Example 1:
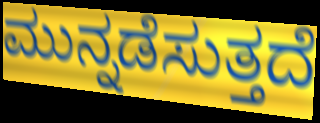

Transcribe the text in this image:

ಮುನ್ನಡೆಸುತ್ತದೆ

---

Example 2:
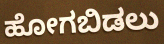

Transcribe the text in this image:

ಹೋಗಬಿಡಲು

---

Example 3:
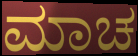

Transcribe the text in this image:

ಮಾಚ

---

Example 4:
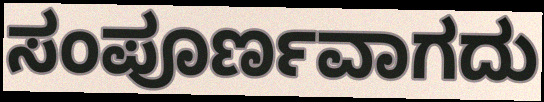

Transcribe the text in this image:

ಸಂಪೂರ್ಣವಾಗದು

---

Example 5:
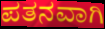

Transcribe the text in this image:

ಪತನವಾಗಿ